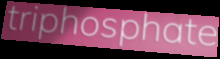
triphosphate